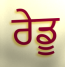
ਰੇਡੂ